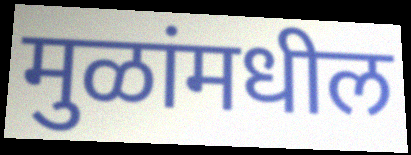
मुळांमधील